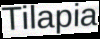
Tilapia